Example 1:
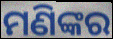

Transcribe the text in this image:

ମଣିଙ୍କର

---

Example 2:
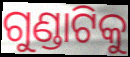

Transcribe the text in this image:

ଗୁଣ୍ଡାଟିକୁ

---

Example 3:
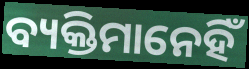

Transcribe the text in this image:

ବ୍ୟକ୍ତିମାନେହିଁ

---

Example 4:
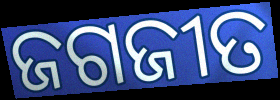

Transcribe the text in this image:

ଜଗଜୀତ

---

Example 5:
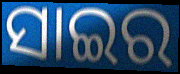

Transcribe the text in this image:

ସାଇର